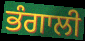
ਭੰਗਾਲੀ